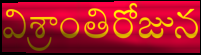
విశ్రాంతిరోజున